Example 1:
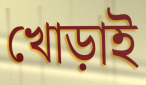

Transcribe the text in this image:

খোড়াই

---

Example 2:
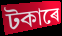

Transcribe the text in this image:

টকাৰে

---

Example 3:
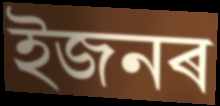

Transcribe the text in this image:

ইজনৰ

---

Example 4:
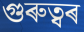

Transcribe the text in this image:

গুৰুত্বৰ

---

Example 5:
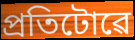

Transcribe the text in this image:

প্ৰতিটোৱে